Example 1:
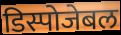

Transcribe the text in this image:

डिस्पोजेबल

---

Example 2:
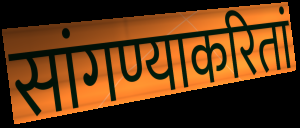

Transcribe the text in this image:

सांगण्याकरितां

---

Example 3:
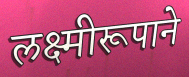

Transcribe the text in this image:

लक्ष्मीरूपाने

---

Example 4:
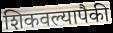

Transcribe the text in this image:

शिकवल्यापैकी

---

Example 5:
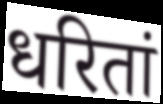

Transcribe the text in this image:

धरितां